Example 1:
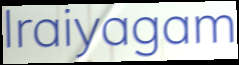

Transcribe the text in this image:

Iraiyagam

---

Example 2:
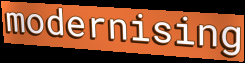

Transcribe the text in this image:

modernising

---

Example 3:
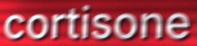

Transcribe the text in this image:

cortisone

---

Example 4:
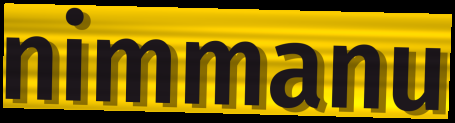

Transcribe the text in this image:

nimmanu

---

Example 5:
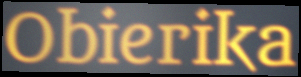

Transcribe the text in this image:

Obierika